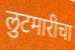
लुटमारीचा